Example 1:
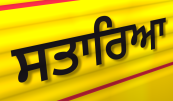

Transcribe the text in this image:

ਸਤਾਰਿਆ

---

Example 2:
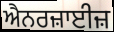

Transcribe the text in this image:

ਐਨਰਜ਼ਾਈਜ਼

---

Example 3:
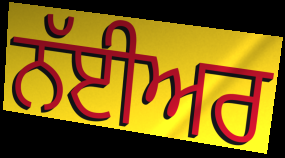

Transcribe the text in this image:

ਨੱਈਅਰ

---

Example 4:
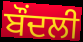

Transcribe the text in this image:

ਬੌਂਦਲੀ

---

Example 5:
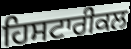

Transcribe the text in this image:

ਹਿਸਟਾਰੀਕਲ